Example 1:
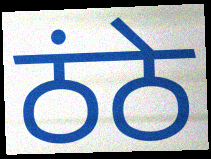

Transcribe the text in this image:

ठंठे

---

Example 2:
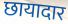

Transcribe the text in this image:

छायादार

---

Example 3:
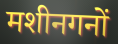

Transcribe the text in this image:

मशीनगनों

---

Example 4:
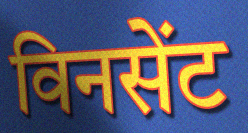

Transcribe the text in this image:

विनसेंट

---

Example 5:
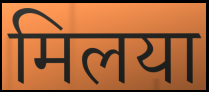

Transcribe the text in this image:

मिलया